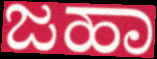
ಜಹಾ